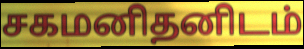
சகமனிதனிடம்